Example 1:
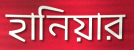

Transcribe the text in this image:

হানিয়ার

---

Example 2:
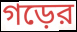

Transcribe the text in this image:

গড়ের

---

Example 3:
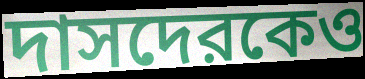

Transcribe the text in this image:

দাসদেরকেও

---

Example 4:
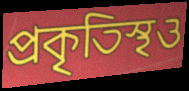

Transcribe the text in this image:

প্রকৃতিস্থও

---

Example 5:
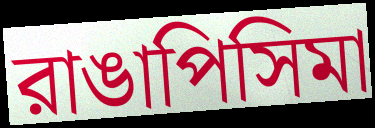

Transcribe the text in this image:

রাঙাপিসিমা